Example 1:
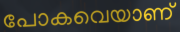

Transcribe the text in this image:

പോകവെയാണ്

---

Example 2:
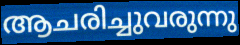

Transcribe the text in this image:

ആചരിച്ചുവരുന്നു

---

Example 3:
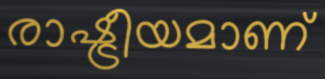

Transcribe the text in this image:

രാഷ്ട്രീയമാണ്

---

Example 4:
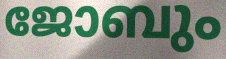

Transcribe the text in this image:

ജോബും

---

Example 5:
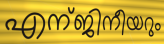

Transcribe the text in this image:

എന്ജിനീയറും